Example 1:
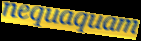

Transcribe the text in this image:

nequaquam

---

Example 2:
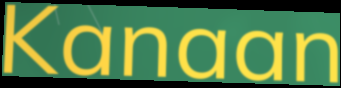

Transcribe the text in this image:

Kanaan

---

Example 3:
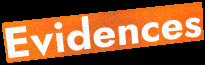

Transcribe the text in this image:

Evidences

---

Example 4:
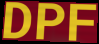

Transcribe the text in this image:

DPF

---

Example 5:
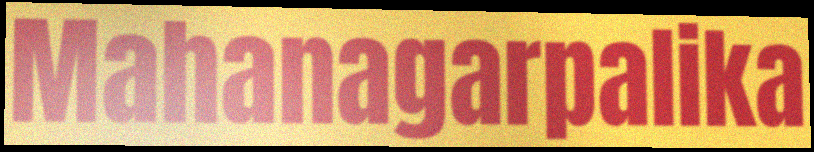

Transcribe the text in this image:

Mahanagarpalika